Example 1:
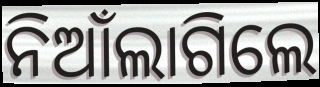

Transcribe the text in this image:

ନିଆଁଲାଗିଲେ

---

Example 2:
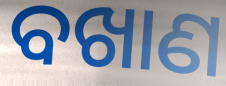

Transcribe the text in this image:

ବଖାଣ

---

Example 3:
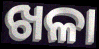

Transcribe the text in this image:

ଖଳା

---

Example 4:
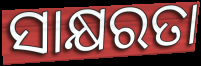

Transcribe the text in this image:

ସାକ୍ଷରତା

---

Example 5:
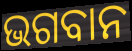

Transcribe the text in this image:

ଭଗବାନ